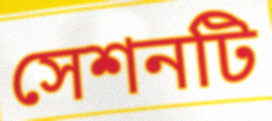
সেশনটি